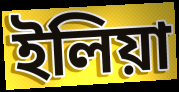
ইলিয়া